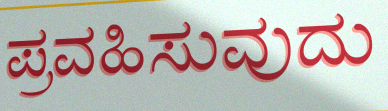
ಪ್ರವಹಿಸುವುದು